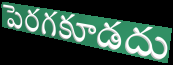
పెరగకూడదు